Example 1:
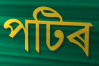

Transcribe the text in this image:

পটিৰ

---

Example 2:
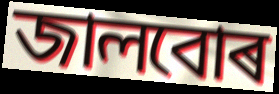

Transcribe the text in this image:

জালবোৰ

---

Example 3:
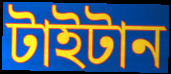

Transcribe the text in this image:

টাইটান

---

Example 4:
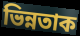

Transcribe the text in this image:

ভিন্নতাক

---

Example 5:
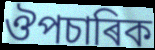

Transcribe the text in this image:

ঔপচাৰিক